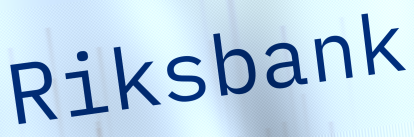
Riksbank